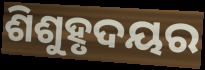
ଶିଶୁହୃଦୟର